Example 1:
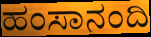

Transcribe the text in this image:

ಹಂಸಾನಂದಿ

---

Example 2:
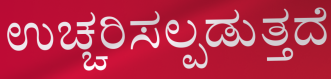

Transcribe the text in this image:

ಉಚ್ಚರಿಸಲ್ಪಡುತ್ತದೆ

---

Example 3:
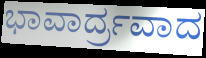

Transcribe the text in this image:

ಭಾವಾರ್ದ್ರವಾದ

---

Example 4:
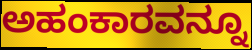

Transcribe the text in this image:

ಅಹಂಕಾರವನ್ನೂ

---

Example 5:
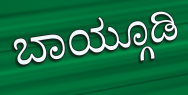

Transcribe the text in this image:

ಬಾಯ್ಗೂಡಿ